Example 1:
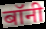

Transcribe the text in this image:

बॉनी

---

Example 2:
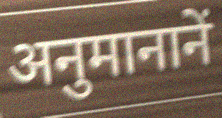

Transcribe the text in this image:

अनुमानानें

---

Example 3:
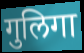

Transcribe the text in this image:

गुलिगा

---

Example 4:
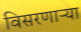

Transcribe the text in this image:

विसरणाऱ्या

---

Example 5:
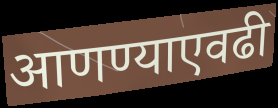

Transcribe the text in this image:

आणण्याएवढी